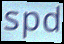
spd